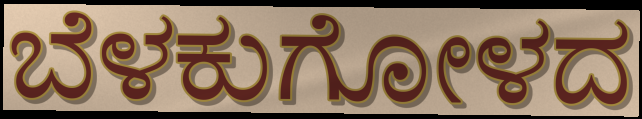
ಬೆಳಕುಗೋಳದ